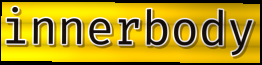
innerbody